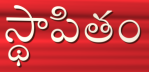
స్థాపితం